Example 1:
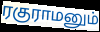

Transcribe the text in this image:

ரகுராமனும்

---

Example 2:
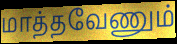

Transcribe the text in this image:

மாத்தவேணும்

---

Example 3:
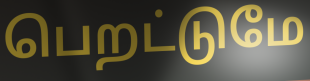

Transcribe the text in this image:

பெறட்டுமே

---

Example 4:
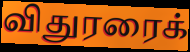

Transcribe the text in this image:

விதுரரைக்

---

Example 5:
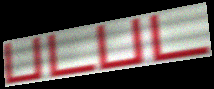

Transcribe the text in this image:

படபட